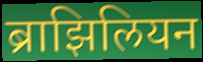
ब्राझिलियन